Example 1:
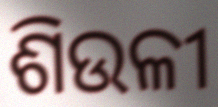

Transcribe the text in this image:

ଶିଉଳୀ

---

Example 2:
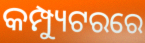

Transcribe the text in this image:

କମ୍ପ୍ୟୁଟରରେ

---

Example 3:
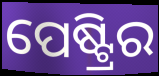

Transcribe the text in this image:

ପେଷ୍ଟ୍ରିର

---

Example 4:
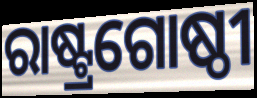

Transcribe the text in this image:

ରାଷ୍ଟ୍ରଗୋଷ୍ଠୀ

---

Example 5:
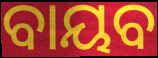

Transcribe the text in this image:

ବାୟବ